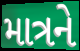
માત્રને